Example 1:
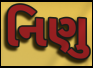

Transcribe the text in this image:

નિણુ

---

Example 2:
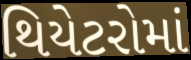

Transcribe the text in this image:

થિયેટરોમાં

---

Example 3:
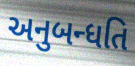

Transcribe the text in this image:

અનુબન્ધતિ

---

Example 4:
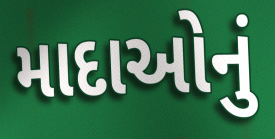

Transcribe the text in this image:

માદાઓનું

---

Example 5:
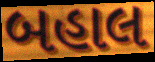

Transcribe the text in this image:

બહાલ